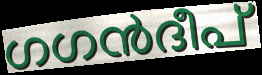
ഗഗൻദീപ്